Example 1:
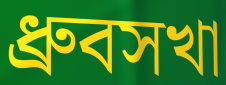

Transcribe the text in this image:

ধ্রুবসখা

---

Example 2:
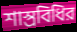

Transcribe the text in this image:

শাস্ত্রবিধির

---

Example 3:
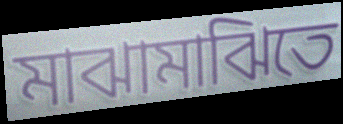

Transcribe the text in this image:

মাঝামাঝিতে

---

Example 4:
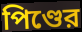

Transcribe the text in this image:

পিণ্ডের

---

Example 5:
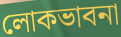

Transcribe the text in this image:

লোকভাবনা